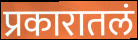
प्रकारातलं